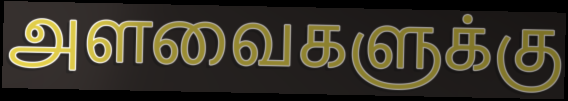
அளவைகளுக்கு